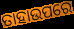
ତାହାଉପରେ